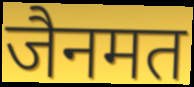
जैनमत